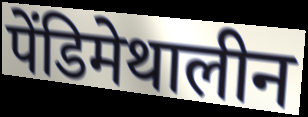
पेंडिमेथालीन